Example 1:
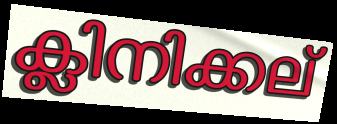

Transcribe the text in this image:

ക്ലിനിക്കല്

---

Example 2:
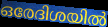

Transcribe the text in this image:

ഒരേദിശയിൽ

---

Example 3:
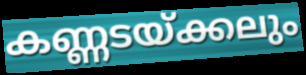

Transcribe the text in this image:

കണ്ണടയ്ക്കലും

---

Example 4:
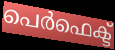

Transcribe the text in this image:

പെർഫെക്ട്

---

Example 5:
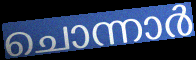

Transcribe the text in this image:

ചൊന്നാർ